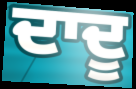
ਦਾਦੂ